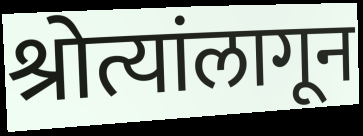
श्रोत्यांलागून